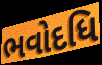
ભવોદધિ